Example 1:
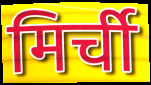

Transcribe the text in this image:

मिर्ची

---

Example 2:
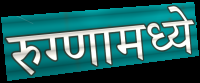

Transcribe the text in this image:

रुग्णामध्ये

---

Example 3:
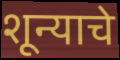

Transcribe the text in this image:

शून्याचे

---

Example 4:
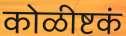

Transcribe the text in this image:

कोळीष्टकं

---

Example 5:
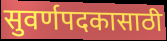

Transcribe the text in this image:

सुवर्णपदकासाठी